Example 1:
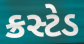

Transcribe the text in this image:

ક્રસ્ટેડ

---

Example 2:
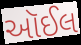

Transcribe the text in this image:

આૅઈલ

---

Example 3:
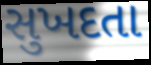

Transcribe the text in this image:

સુખદતા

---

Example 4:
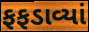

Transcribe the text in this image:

ફફડાવ્યાં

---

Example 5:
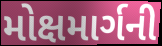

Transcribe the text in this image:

મોક્ષમાર્ગની